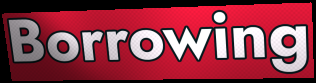
Borrowing